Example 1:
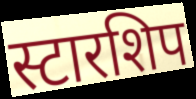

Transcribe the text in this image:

स्टारशिप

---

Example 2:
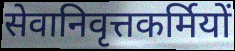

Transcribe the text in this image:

सेवानिवृत्तकर्मियों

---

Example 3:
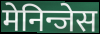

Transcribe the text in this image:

मेनिन्जेस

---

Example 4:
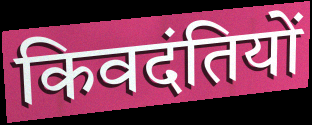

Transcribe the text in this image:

किवदंतियों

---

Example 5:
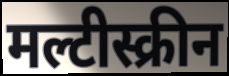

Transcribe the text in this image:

मल्टीस्क्रीन